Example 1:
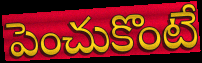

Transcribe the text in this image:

పెంచుకొంటే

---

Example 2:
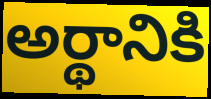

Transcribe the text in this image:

అర్థానికి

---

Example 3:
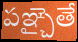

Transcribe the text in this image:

పఞ్చైతే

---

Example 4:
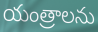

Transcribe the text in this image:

యంత్రాలను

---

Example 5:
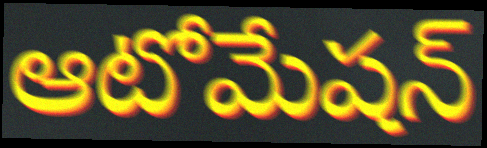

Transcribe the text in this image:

ఆటోమేషన్